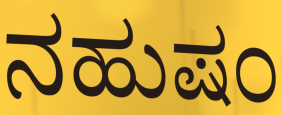
ನಹುಷಂ